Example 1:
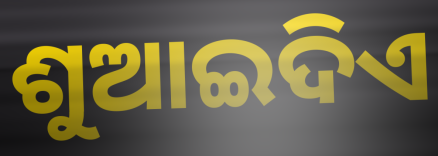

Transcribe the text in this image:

ଶୁଆଇଦିଏ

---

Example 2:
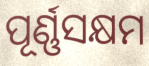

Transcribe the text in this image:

ପୂର୍ଣ୍ଣସକ୍ଷମ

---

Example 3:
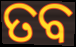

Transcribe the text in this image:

ତବ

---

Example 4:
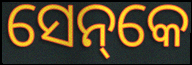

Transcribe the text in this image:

ସେନ୍‌କେ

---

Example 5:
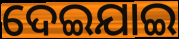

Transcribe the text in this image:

ଦେଇଯାଇ